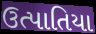
ઉત્પાતિયા